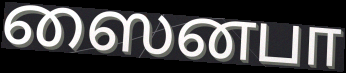
ஸைனபா